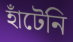
হাঁটেনি